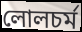
লোলচর্ম